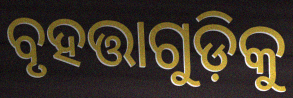
ବୃହତ୍ତାଗୁଡ଼ିକୁ